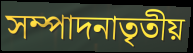
সম্পাদনাতৃতীয়